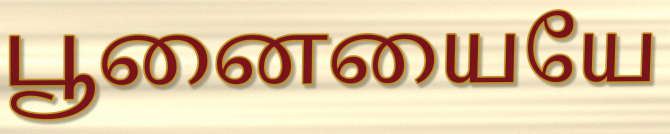
பூனையையே